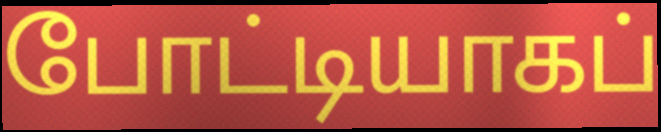
போட்டியாகப்